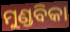
ମୁଣ୍ଡବିକା